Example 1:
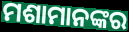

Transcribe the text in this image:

ମଶାମାନଙ୍କର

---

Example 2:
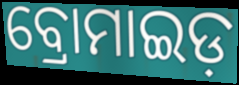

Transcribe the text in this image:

ବ୍ରୋମାଇଡ଼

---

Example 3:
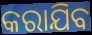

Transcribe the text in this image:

କରାଯିବ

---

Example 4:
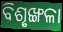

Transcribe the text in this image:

ବିଶୃଙ୍ଖଳା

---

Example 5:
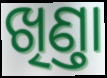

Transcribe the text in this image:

ଖିଣ୍ତା